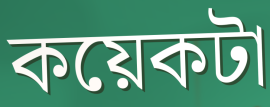
কয়েকটা